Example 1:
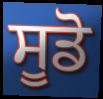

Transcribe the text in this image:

ਸੂਡੋ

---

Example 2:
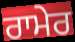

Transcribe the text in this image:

ਰਾਮੇਰ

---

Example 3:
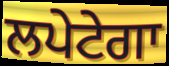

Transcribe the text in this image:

ਲਪੇਟੇਗਾ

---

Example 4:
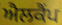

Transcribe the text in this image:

ਐਲਕੈਂਪ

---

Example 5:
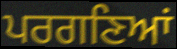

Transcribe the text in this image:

ਪਰਗਣਿਆਂ